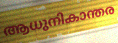
ആധുനികാന്തര